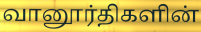
வானூர்திகளின்